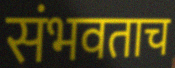
संभवताच